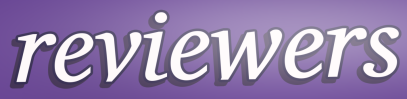
reviewers